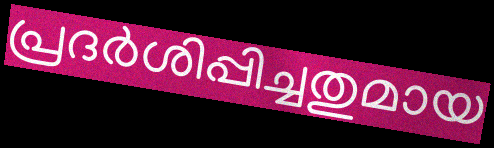
പ്രദർശിപ്പിച്ചതുമായ